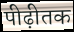
पीढ़ीतक